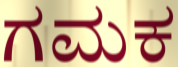
ಗಮಕ